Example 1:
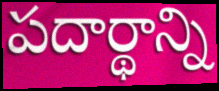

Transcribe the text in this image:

పదార్థాన్ని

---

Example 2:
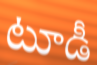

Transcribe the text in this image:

టూడీ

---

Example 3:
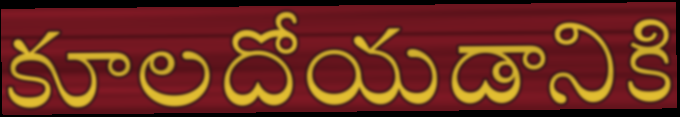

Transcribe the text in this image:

కూలదోయడానికి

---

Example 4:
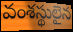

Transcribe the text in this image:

వంశస్థులైన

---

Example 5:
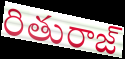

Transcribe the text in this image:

రితురాజ్